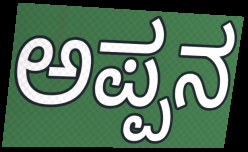
ಅಪ್ಪನ